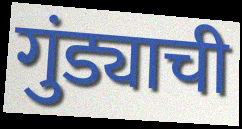
गुंड्याची